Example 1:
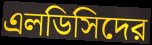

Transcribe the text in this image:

এলডিসিদের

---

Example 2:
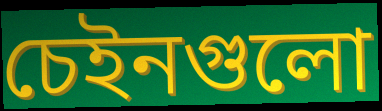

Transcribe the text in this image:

চেইনগুলো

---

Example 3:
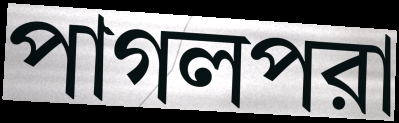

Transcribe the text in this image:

পাগলপরা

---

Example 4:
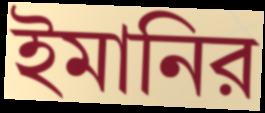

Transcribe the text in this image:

ইমানির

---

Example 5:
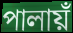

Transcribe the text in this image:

পালায়ঁ